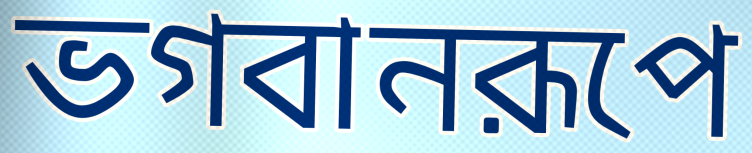
ভগবানরূপে